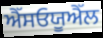
ਐੱਸਓਯੂਐੱਲ